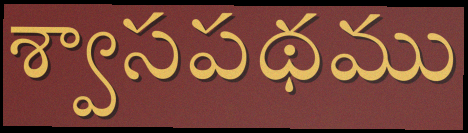
శ్వాసపథము